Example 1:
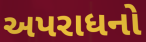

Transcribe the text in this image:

અપરાધનો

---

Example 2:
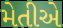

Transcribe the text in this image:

મેતીએ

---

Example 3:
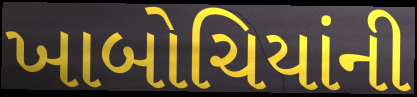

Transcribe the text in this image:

ખાબોચિયાંની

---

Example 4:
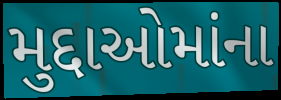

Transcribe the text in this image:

મુદ્દાઓમાંના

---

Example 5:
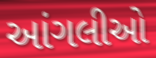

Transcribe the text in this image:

આંગલીઓ